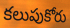
కలుపుకోరు